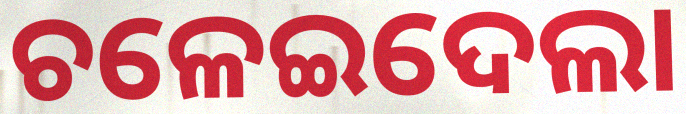
ଚଳେଇଦେଲା